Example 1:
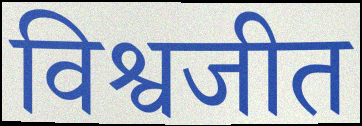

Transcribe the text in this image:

विश्वजीत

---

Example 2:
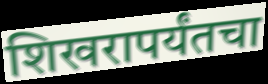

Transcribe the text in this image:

शिखरापर्यंतचा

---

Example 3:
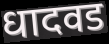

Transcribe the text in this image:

धादवड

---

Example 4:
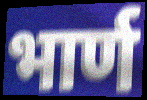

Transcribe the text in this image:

भार्ण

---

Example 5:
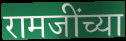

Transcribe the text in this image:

रामजींच्या